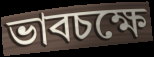
ভাবচক্ষে